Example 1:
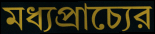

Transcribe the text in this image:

মধ্যপ্রাচ্যের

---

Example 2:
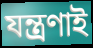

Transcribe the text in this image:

যন্ত্রণাই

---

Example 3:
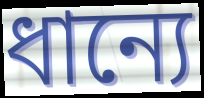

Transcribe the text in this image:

ধান্যে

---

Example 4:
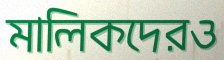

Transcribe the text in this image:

মালিকদেরও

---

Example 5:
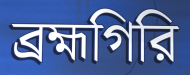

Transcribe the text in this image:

ব্রহ্মগিরি